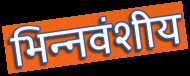
भिन्नवंशीय